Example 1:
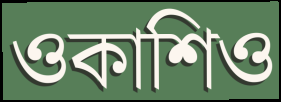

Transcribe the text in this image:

ওকাশিও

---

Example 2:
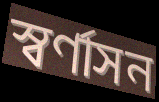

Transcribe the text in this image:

স্বর্ণাসন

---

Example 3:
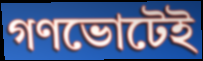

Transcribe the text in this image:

গণভোটেই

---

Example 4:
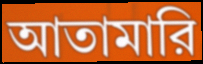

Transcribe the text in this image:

আতামারি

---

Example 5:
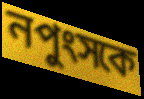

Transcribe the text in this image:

নপুংসকে